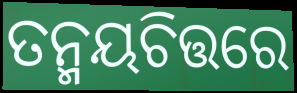
ତନ୍ମୟଚିତ୍ତରେ